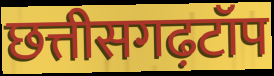
छत्तीसगढ़टॉप